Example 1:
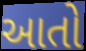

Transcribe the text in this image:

આતો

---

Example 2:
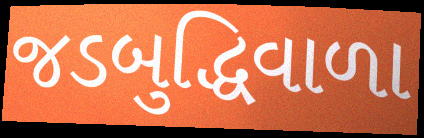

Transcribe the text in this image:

જડબુદ્ધિવાળા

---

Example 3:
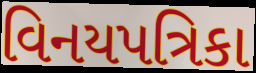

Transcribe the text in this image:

વિનયપત્રિકા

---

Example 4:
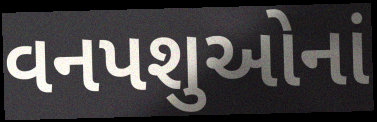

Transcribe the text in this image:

વનપશુઓનાં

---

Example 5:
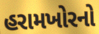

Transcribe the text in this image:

હરામખોરનો